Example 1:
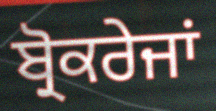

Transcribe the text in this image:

ਬ੍ਰੋਕਰੇਜਾਂ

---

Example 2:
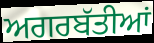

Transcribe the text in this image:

ਅਗਰਬੱਤੀਆਂ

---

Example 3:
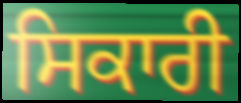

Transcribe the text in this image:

ਸਿਕਾਰੀ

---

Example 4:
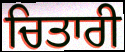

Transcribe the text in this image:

ਚਿਤਾਰੀ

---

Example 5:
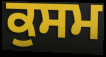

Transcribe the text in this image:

ਕੁਸਮ